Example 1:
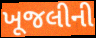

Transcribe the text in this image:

ખૂજલીની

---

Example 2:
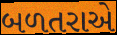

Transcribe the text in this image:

બળતરાએ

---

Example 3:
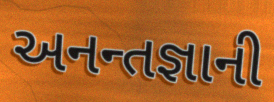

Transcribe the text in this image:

અનન્તજ્ઞાની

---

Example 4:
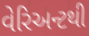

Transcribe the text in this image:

વેરિઅન્ટથી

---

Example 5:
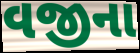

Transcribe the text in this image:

વજીના